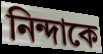
নিন্দাকে